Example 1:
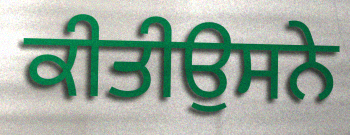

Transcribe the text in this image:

ਕੀਤੀਉਸਨੇ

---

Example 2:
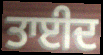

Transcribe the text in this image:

ਤਾਈਦ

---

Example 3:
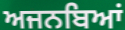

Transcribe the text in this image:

ਅਜਨਬਿਆਂ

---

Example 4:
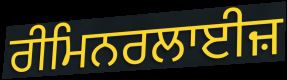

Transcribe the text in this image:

ਰੀਮਿਨਰਲਾਈਜ਼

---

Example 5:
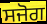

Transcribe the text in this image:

ਸਜੋਗ